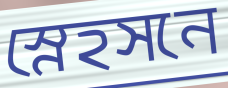
স্নেহসনে